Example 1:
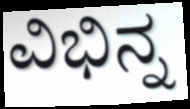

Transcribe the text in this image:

ವಿಭಿನ್ನ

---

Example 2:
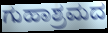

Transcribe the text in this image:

ಗುಹಾಶ್ರಮದ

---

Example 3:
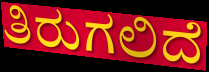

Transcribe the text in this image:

ತಿರುಗಲಿದೆ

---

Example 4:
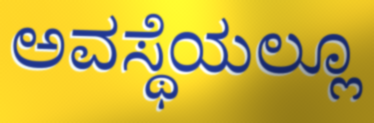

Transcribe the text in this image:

ಅವಸ್ಥೆಯಲ್ಲೂ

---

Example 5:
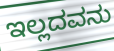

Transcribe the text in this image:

ಇಲ್ಲದವನು